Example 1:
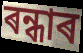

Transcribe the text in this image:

ৰন্ধাৰ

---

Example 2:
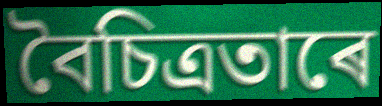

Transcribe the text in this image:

বৈচিত্ৰতাৰে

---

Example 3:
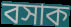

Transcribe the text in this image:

বসাক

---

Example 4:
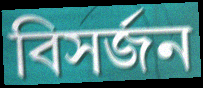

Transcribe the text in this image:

বিসৰ্জন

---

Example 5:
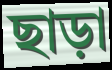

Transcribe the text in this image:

ছাড়া